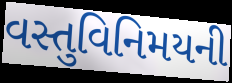
વસ્તુવિનિમયની